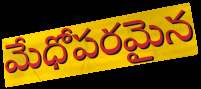
మేధోపరమైన